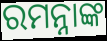
ରମନ୍ନାଙ୍କ